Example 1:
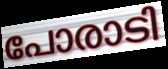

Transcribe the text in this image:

പോരാടി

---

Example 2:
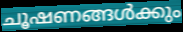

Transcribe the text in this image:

ചൂഷണങ്ങൾക്കും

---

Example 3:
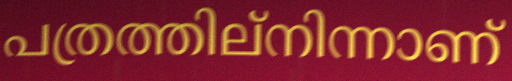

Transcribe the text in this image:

പത്രത്തില്നിന്നാണ്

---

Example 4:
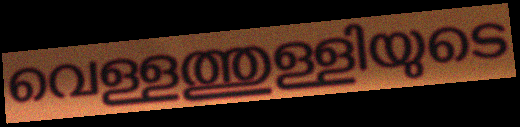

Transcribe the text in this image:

വെള്ളത്തുള്ളിയുടെ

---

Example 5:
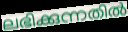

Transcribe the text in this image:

ലഭിക്കുന്നതിൽ